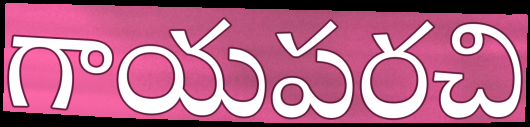
గాయపరచి